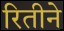
रितीने